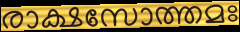
രാക്ഷസോത്തമഃ